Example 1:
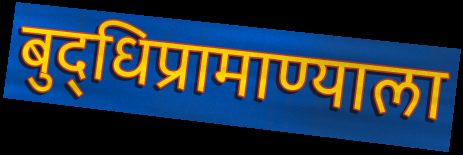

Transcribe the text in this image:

बुद्धिप्रामाण्याला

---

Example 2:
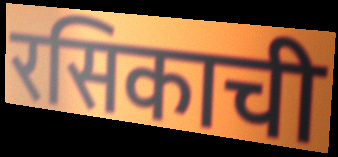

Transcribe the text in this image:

रसिकाची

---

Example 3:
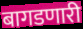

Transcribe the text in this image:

बागडणारी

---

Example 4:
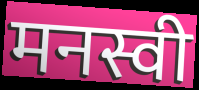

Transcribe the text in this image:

मनस्वी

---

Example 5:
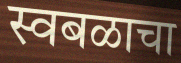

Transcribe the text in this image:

स्वबळाचा